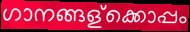
ഗാനങ്ങള്ക്കൊപ്പം